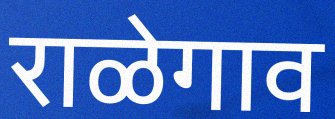
राळेगाव